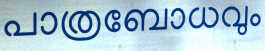
പാത്രബോധവും